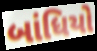
બાંધિયો